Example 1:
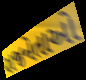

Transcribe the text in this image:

રાજનેતાઓ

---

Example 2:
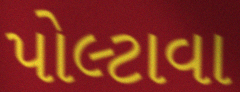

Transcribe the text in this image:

પોલ્ટાવા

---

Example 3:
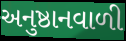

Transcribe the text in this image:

અનુષ્ઠાનવાળી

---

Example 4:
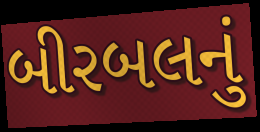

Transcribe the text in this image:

બીરબલનું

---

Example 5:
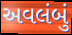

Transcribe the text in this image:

અવલંબું